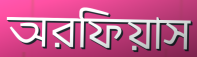
অরফিয়াস